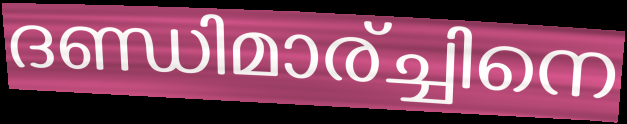
ദണ്ഡിമാര്ച്ചിനെ